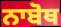
ਨਾਬੋਥ